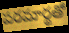
పరమార్థతో